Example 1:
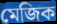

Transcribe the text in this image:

মেজিক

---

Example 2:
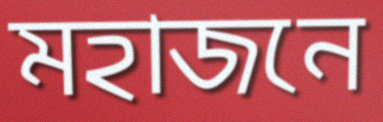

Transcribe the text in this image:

মহাজনে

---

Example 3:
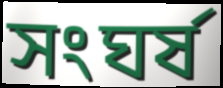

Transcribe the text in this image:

সংঘৰ্ষ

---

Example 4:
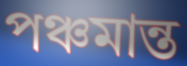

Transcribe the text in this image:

পঞ্চমান্ত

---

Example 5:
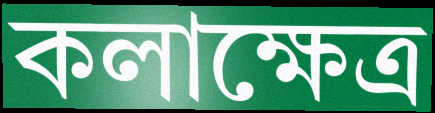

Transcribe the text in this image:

কলাক্ষেত্ৰ